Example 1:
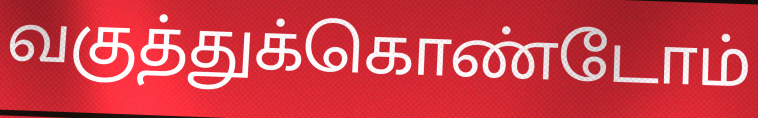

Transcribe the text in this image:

வகுத்துக்கொண்டோம்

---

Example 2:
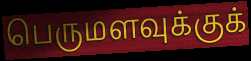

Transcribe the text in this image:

பெருமளவுக்குக்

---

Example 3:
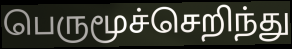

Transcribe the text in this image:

பெருமூச்செறிந்து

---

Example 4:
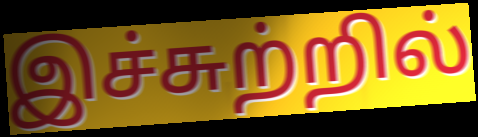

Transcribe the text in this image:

இச்சுற்றில்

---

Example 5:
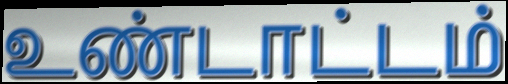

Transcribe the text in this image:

உண்டாட்டம்